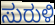
ಸುರುಳಿ